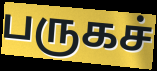
பருகச்